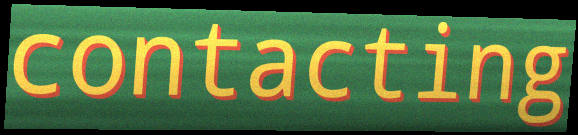
contacting